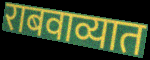
राबवाव्यात